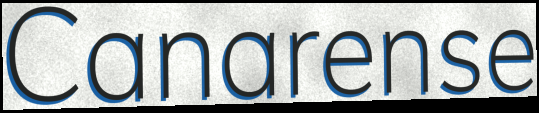
Canarense